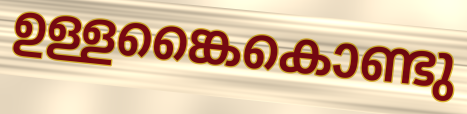
ഉള്ളങ്കൈകൊണ്ടു